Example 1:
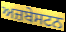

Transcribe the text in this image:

ਅਜ਼ਬੇਸਟਨ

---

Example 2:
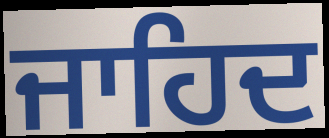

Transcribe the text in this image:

ਜਾਹਿਦ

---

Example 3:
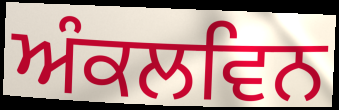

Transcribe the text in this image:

ਅੰਕਲਵਿਨ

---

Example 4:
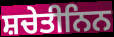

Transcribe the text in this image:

ਸ਼ਚੇਤੀਨਿਨ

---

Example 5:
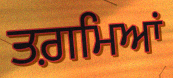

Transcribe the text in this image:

ਤਗ਼ਮਿਆਂ